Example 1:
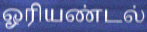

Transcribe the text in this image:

ஓரியண்டல்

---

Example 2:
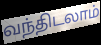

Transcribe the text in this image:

வந்திடலாம்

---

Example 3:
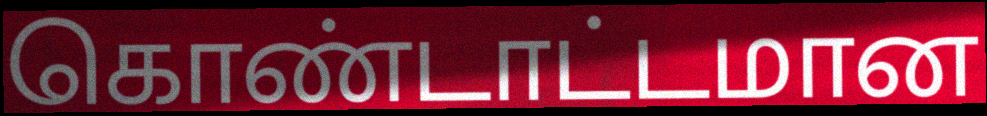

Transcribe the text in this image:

கொண்டாட்டமான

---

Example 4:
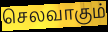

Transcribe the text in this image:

செலவாகும்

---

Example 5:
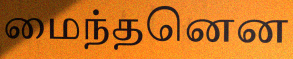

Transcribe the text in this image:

மைந்தனென